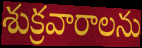
శుక్రవారాలను